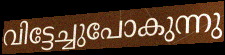
വിട്ടേച്ചുപോകുന്നു